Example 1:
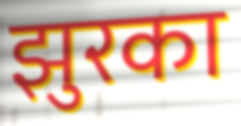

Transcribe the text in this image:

झुरका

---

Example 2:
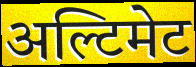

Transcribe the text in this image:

अल्टिमेट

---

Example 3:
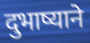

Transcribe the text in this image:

दुभाष्याने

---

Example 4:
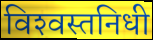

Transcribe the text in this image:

विश्वस्तनिधी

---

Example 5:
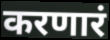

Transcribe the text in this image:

करणारं